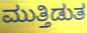
ಮುತ್ತಿಡುತ